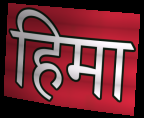
हिमा